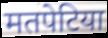
मतपेटिया